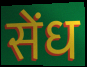
सेंध